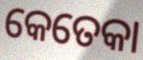
କେତେକା